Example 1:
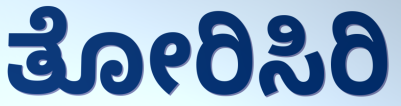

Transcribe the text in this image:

ತೋರಿಸಿರಿ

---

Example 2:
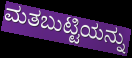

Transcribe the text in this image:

ಮತಬುಟ್ಟಿಯನ್ನು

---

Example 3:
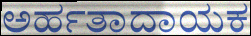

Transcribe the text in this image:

ಅರ್ಹತಾದಾಯಕ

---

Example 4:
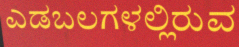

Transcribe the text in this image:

ಎಡಬಲಗಳಲ್ಲಿರುವ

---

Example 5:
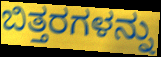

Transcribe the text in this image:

ಬಿತ್ತರಗಳನ್ನು